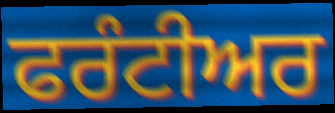
ਫਰੰਟੀਅਰ